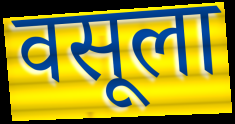
वसूला